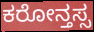
ಕರೋನ್ತಸ್ಸ